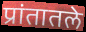
प्रांतातले